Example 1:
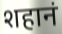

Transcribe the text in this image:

शहानं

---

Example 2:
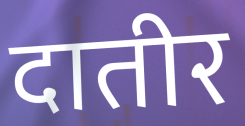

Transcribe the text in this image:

दातीर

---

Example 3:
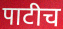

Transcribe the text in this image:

पाटीच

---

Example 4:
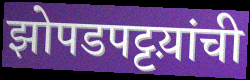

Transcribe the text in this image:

झोपडपट्टय़ांची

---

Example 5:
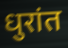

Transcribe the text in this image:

धुरांत